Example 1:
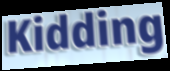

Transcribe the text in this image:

Kidding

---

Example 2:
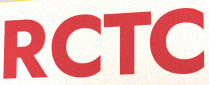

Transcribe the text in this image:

RCTC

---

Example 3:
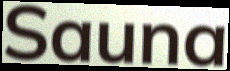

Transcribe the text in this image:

Sauna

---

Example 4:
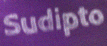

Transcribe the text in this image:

Sudipto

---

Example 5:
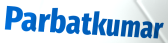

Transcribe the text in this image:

Parbatkumar